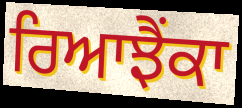
ਰਿਆਝੈਂਕਾ